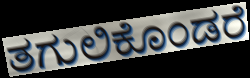
ತಗುಲಿಕೊಂಡರೆ